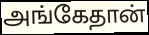
அங்கேதான்